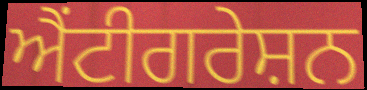
ਐਂਟੀਗਰੇਸ਼ਨ